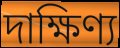
দাক্ষিণ্য